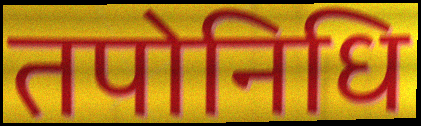
तपोनिधि